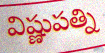
విష్ణుపత్ని